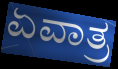
ಏವಾತ್ರ